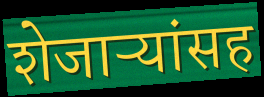
शेजाऱ्यांसह